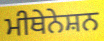
ਮੀਥੇਨੇਸ਼ਨ